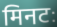
मिनटः